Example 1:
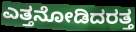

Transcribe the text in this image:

ಎತ್ತನೋಡಿದರತ್ತ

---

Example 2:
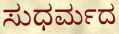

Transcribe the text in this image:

ಸುಧರ್ಮದ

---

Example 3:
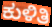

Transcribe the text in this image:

ಕುಳಿತಿ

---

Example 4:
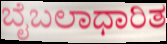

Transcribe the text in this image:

ಬೈಬಲಾಧಾರಿತ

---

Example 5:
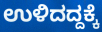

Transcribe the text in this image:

ಉಳಿದದ್ದಕ್ಕೆ